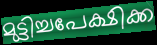
മുട്ടിച്ചപേക്ഷിക്ക